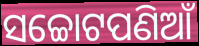
ସଚ୍ଚୋଟପଣିଆଁ